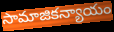
సామాజికన్యాయం